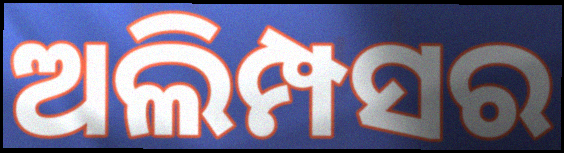
ଅଲିମ୍ପସର